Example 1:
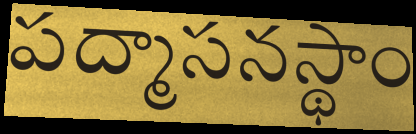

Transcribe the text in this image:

పద్మాసనస్థాం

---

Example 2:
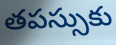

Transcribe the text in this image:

తపస్సుకు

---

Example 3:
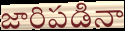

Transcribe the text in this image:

జారిపడినా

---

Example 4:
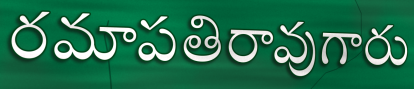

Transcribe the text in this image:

రమాపతిరావుగారు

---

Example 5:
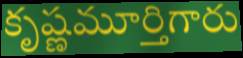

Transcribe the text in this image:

కృష్ణమూర్తిగారు